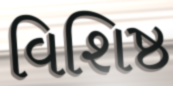
વિશિષ્ઠ